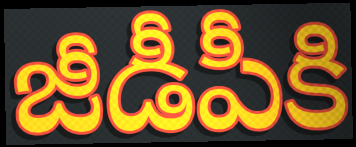
జీడీపీకి